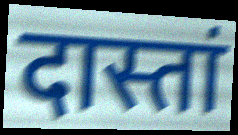
दास्तां